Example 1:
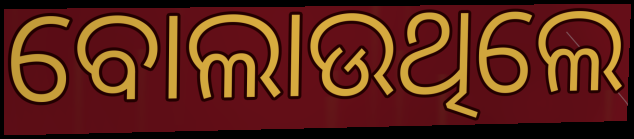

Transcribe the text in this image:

ବୋଲାଉଥିଲେ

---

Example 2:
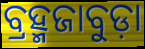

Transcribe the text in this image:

ବ୍ରହ୍ମଜାବୁଡ଼ା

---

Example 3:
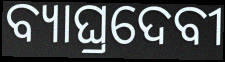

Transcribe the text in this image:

ବ୍ୟାଘ୍ରଦେବୀ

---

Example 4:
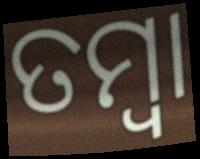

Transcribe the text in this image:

ତମ୍ୱା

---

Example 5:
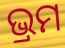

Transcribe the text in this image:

ଭ୍ରମ